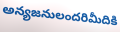
అన్యజనులందరిమీదికి